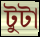
টুটা